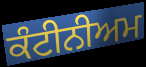
ਕੰਟੀਨੀਅਮ